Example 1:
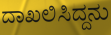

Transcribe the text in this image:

ದಾಖಲಿಸಿದ್ದನು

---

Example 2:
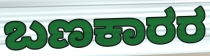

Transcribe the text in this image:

ಬಣಕಾರರ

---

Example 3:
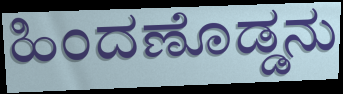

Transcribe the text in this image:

ಹಿಂದಣೊಡ್ಡನು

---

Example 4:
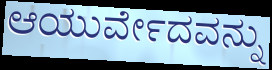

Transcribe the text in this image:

ಆಯುರ್ವೇದವನ್ನು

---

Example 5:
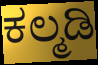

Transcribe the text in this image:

ಕಲ್ಮಡಿ